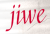
jiwe